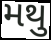
મથુ